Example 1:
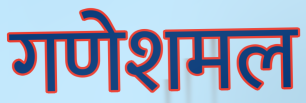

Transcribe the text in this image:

गणेशमल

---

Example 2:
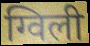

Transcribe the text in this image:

ग्विली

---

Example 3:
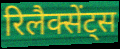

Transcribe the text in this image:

रिलैक्सेंट्स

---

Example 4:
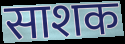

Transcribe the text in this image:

साशक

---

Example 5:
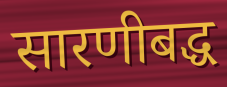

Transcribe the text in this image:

सारणीबद्ध